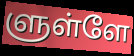
ளுள்ளே